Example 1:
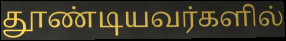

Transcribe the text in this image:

தூண்டியவர்களில்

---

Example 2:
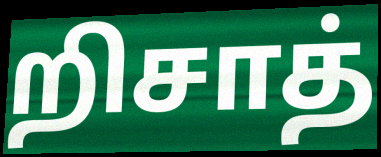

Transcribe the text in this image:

றிசாத்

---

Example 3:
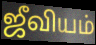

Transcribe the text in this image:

ஜீவியம்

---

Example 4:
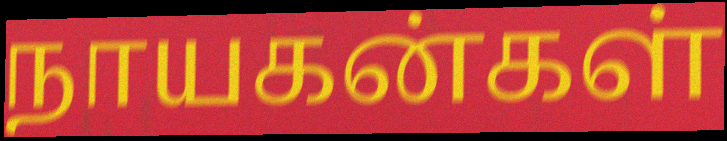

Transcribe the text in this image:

நாயகன்கள்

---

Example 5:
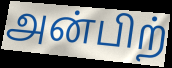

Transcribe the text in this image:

அன்பிற்